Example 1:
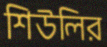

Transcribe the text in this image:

শিউলির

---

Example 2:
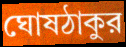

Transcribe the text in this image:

ঘোষঠাকুর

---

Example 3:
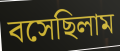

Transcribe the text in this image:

বসেছিলাম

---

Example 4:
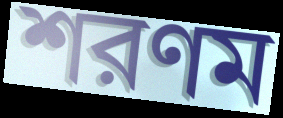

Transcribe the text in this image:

শরণম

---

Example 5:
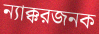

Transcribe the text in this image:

ন্যাক্করজনক